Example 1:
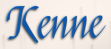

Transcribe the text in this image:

Kenne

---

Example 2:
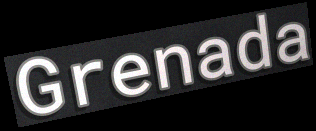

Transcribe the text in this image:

Grenada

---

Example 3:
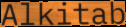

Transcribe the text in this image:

Alkitab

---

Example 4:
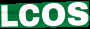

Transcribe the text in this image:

LCOS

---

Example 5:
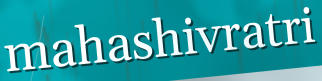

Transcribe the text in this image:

mahashivratri